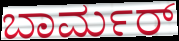
ಬಾರ್ಮರ್